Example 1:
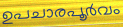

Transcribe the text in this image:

ഉപചാരപൂർവം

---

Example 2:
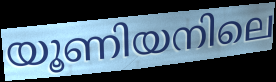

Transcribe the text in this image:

യൂണിയനിലെ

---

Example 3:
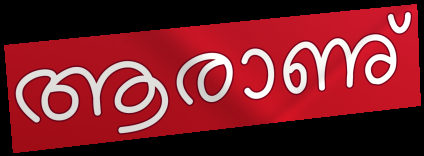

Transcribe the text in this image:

ആരാണു്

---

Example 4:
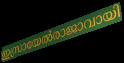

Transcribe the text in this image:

ഇസ്രായേൽരാജാവായി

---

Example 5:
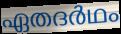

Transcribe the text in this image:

ഏതദർഥം